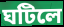
ঘটিলে